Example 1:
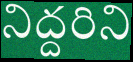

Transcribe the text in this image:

నిద్దరిని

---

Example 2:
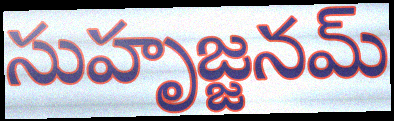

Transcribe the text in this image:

సుహృజ్జనమ్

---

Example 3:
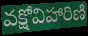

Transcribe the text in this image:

వక్షోవిహారిణి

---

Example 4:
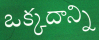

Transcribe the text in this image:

ఒక్కదాన్ని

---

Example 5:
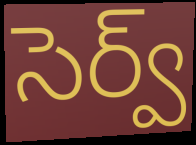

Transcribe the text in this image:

సెర్వ్